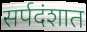
सर्पदंशात